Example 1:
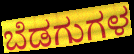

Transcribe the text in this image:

ಬೆಡಗುಗಳ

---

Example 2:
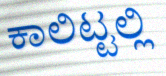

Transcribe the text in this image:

ಕಾಲಿಟ್ಟಲ್ಲಿ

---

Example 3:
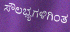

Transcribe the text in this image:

ಸೌಲಭ್ಯಗಳಿಗಿಂತ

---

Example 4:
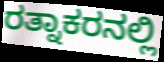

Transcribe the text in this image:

ರತ್ನಾಕರನಲ್ಲಿ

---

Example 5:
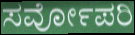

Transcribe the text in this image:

ಸರ್ವೋಪರಿ